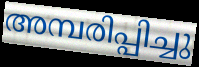
അമ്പരിപ്പിച്ചു